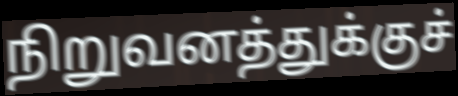
நிறுவனத்துக்குச்